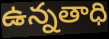
ఉన్నతాధి